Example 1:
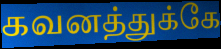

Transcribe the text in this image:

கவனத்துக்கே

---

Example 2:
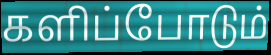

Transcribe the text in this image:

களிப்போடும்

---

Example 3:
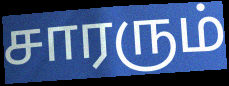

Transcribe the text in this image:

சாரரும்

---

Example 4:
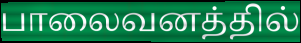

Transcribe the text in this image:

பாலைவனத்தில்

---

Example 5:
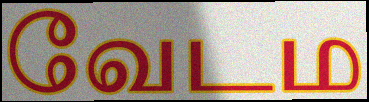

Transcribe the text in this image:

வேடம